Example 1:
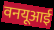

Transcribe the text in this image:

वनयूआई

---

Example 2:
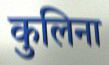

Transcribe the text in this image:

कुलिना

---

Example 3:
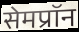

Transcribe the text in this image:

सेमप्रॉन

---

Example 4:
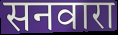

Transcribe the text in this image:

सनवारा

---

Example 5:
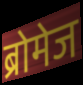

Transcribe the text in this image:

ब्रोमेज